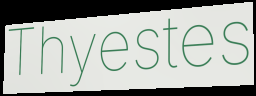
Thyestes